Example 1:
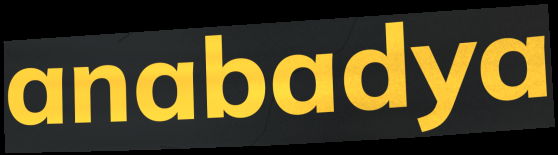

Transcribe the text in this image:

anabadya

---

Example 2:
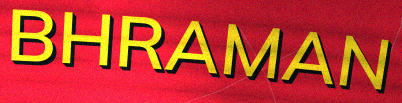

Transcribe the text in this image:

BHRAMAN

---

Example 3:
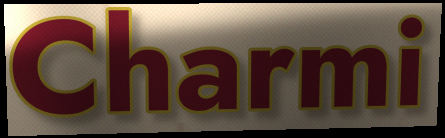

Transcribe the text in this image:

Charmi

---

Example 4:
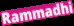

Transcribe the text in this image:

Rammadhi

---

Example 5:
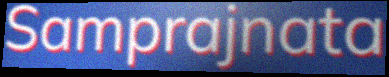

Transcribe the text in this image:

Samprajnata